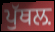
ਪੁੱਥਲ਼